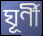
ঘূৰ্ণী